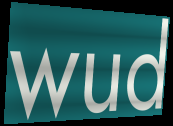
wud